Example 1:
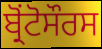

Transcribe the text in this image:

ਬ੍ਰੋਂਟੋਸੌਰਸ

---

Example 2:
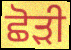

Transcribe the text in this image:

ਛੋੜੀ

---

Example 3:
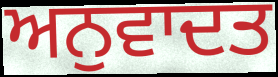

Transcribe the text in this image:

ਅਨੁਵਾਦਤ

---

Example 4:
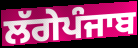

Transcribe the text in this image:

ਲੱਗੇਪੰਜਾਬ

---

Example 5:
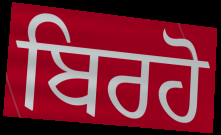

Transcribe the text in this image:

ਬਿਰਹੋ